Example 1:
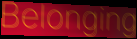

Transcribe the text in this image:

Belonging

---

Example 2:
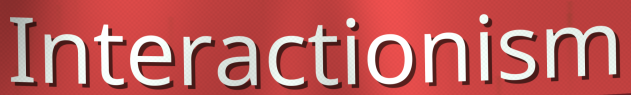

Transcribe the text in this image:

Interactionism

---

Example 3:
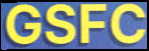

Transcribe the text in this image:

GSFC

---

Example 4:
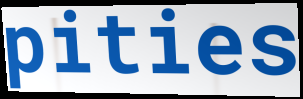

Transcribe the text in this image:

pities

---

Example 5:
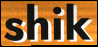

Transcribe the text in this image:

shik